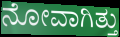
ನೋವಾಗಿತ್ತು